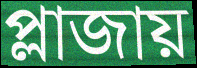
প্লাজায়